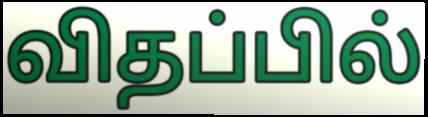
விதப்பில்